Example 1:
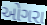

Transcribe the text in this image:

ઓગરા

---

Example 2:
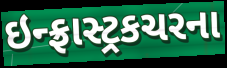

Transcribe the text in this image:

ઇન્ફ્રાસ્ટ્રકચરના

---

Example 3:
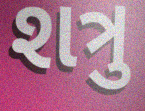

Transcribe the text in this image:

શત્રુ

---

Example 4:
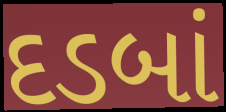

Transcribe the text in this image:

દડબાં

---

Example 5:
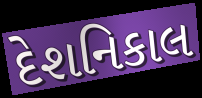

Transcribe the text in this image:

દેશનિકાલ